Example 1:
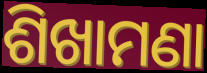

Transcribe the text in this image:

ଶିଖାମଣା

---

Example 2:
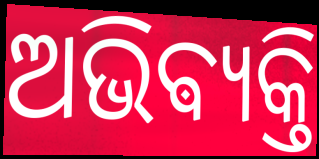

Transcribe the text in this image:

ଅଭିଵ୍ୟକ୍ତି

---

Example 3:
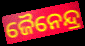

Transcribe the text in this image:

ଜୈନେନ୍ଦ୍ର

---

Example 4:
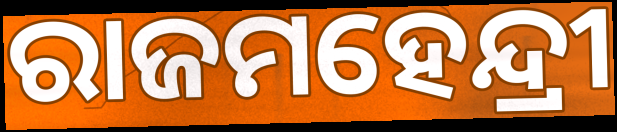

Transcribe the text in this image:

ରାଜମହେନ୍ଦ୍ରୀ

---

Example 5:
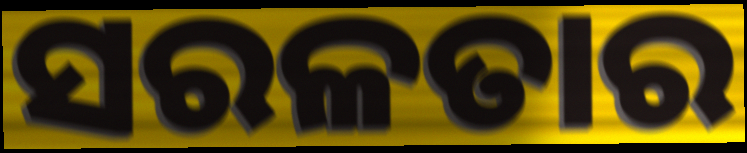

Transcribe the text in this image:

ସରଳତାର